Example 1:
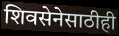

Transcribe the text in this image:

शिवसेनेसाठीही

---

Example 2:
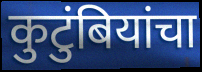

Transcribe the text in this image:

कुटुंबियांचा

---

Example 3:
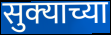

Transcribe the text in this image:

सुक्‍याच्या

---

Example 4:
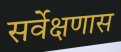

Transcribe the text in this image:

सर्वेक्षणास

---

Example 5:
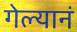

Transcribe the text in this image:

गेल्यानं